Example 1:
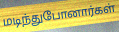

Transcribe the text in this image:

மடிந்துபோனார்கள்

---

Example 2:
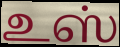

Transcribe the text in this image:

உஸ்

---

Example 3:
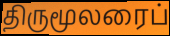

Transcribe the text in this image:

திருமூலரைப்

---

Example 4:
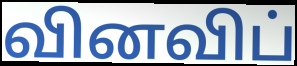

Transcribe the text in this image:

வினவிப்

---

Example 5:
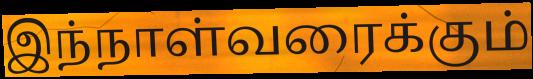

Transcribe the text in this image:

இந்நாள்வரைக்கும்